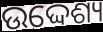
ଉଦ୍ଦେଶ୍ୟ